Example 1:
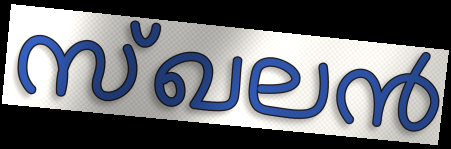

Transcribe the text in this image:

സ്ഖലൻ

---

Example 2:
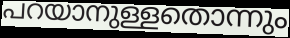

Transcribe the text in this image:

പറയാനുള്ളതൊന്നും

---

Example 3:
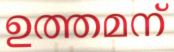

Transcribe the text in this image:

ഉത്തമന്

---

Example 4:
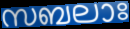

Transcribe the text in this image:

സബലാഃ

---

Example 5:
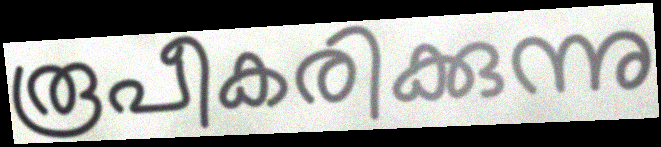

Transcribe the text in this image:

രൂപീകരിക്കുന്നു